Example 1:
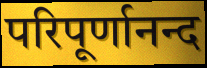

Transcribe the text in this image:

परिपूर्णानन्द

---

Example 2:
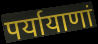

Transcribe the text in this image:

पर्यायाणां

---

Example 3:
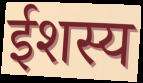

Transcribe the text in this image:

ईशस्य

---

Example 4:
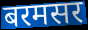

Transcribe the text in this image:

बरमसर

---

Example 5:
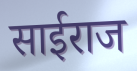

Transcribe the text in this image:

साईराज